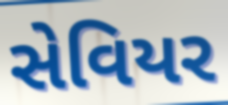
સેવિયર